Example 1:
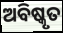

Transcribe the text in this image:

ଅବିଷ୍କୃତ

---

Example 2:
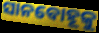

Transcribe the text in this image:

ସାନବୋହୂକୁ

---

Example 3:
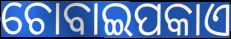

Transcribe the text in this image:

ଚୋବାଇପକାଏ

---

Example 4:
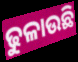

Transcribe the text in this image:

ଢୁଳାଉଛି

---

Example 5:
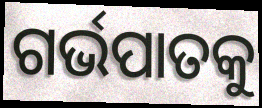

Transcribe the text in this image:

ଗର୍ଭପାତକୁ